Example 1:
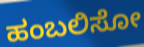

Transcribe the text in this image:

ಹಂಬಲಿಸೋ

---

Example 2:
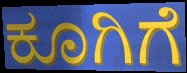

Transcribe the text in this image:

ಕೂಗಿಗೆ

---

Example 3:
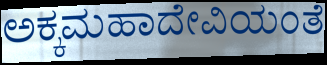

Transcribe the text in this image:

ಅಕ್ಕಮಹಾದೇವಿಯಂತೆ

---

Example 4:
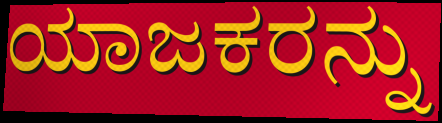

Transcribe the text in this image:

ಯಾಜಕರನ್ನು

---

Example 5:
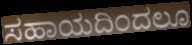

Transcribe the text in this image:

ಸಹಾಯದಿಂದಲೂ